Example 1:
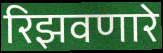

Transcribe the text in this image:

रिझवणारे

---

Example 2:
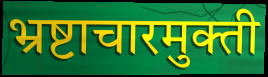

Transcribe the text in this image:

भ्रष्टाचारमुक्ती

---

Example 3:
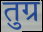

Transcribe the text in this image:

तुग्र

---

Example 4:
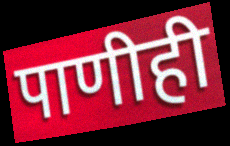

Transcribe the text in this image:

पाणीही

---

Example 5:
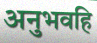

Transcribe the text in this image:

अनुभवहि